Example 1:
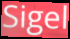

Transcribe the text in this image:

Sigel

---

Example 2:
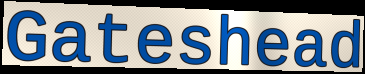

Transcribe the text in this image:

Gateshead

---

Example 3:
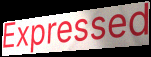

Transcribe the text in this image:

Expressed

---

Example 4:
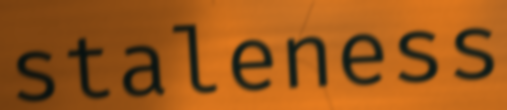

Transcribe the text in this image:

staleness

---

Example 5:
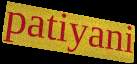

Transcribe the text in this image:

patiyani